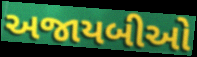
અજાયબીઓ